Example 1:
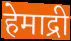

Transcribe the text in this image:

हेमाद्री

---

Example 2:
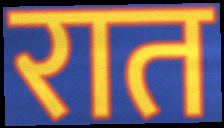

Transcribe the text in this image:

रात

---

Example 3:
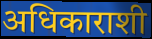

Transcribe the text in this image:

अधिकाराशी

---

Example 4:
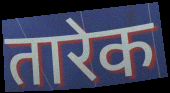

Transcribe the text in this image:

तारेक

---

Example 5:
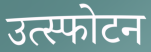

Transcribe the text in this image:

उत्स्फोटन